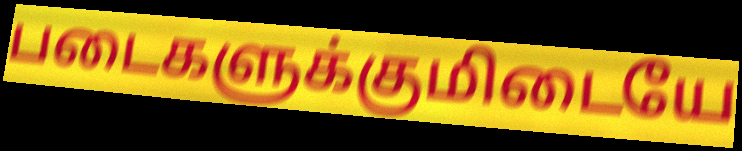
படைகளுக்குமிடையே